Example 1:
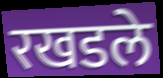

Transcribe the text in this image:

रखडले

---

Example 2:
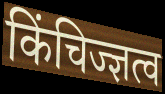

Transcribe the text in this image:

किंचिज्ज्ञत्व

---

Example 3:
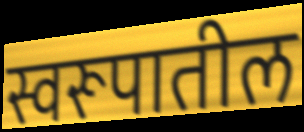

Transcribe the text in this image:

स्वरूपातील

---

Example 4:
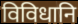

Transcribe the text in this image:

विविधानि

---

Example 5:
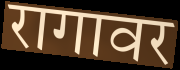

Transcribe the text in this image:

रागावर